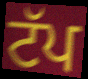
ਟੱਪ